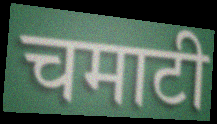
चमाटी